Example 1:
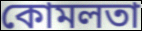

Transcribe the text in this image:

কোমলতা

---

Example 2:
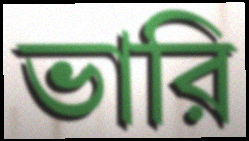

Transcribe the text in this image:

ভারি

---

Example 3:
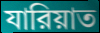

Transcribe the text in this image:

যারিয়াত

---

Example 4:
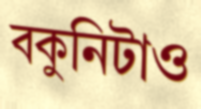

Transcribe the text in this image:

বকুনিটাও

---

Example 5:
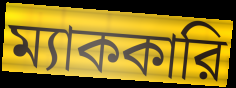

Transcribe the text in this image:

ম্যাককারি